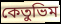
কেতুভিম